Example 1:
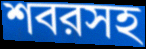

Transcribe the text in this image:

শবরসহ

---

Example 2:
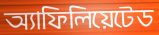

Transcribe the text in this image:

অ্যাফিলিয়েটেড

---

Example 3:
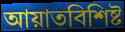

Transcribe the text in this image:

আয়াতবিশিষ্ট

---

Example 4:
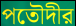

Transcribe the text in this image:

পতৌদীর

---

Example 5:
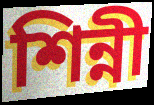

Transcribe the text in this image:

শিন্নী